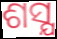
ଶସ୍ଯ